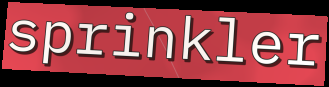
sprinkler